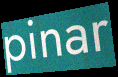
pinar